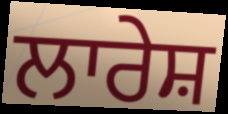
ਲਾਰੇਸ਼